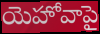
యెహోవాపై